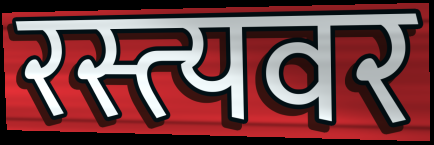
रस्त्यवर